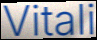
Vitali